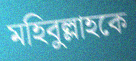
মহিবুল্লাহকে